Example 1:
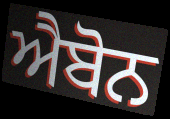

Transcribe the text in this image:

ਐਬੋਨ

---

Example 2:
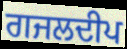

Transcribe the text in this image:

ਗਜਲਦੀਪ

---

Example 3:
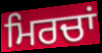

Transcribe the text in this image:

ਮਿਰਚਾਂ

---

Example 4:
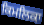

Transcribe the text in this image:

ਕਿਮਲਿਕਾ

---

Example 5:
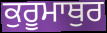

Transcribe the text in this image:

ਕੁਰੂਮਾਥੁਰ